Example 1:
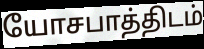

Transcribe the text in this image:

யோசபாத்திடம்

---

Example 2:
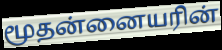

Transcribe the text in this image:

மூதன்னையரின்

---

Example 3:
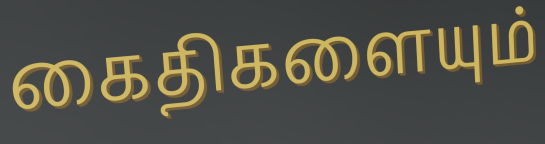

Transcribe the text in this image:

கைதிகளையும்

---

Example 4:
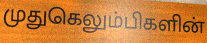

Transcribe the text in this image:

முதுகெலும்பிகளின்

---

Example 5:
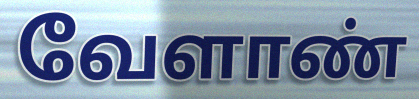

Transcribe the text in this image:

வேளாண்